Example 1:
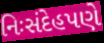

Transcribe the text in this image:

નિઃસંદેહપણે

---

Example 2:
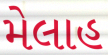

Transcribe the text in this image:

મેલાહ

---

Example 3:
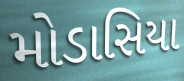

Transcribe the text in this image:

મોડાસિયા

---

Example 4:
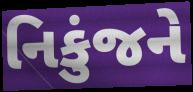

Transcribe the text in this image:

નિકુંજને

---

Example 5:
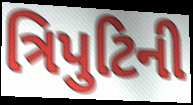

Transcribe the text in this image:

ત્રિપુટિની